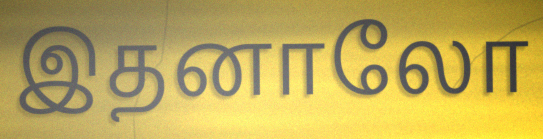
இதனாலோ